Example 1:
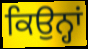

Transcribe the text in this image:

ਕਿਉਨ੍ਹਾਂ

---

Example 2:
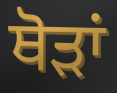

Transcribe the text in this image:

ਥੋੜਾਂ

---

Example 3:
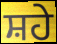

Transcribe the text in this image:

ਸ਼ਹੇ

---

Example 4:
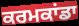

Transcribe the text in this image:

ਕਰਮਕਾਂਡਾ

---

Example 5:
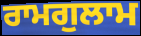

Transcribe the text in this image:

ਰਾਮਗੁਲਾਮ